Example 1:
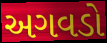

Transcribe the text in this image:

અગવડો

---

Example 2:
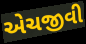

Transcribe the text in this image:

એચજીવી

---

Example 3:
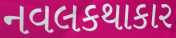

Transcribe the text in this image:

નવલકથાકાર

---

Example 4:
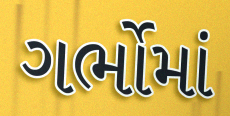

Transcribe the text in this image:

ગર્ભોમાં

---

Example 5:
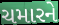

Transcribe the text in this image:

ચમારને